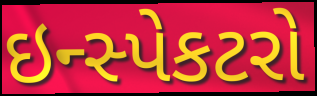
ઇન્સ્પેકટરો